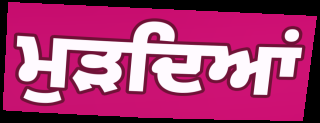
ਮੁੜਦਿਆਂ